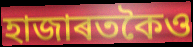
হাজাৰতকৈও